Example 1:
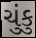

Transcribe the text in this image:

ચુંકુ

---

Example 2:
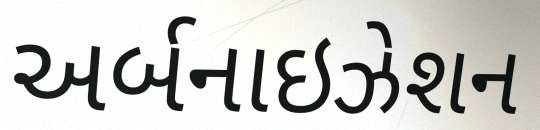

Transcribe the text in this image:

અર્બનાઇઝેશન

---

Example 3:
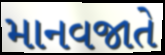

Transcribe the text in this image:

માનવજાતે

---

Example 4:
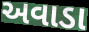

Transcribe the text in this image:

અવાડા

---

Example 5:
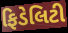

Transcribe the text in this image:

ફિડેલિટી